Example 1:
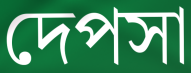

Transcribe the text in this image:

দেপসা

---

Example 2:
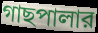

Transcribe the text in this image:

গাছপালার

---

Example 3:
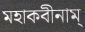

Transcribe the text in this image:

মহাকবীনাম্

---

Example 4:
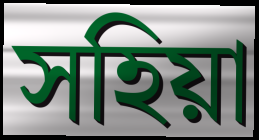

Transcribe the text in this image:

সহিয়া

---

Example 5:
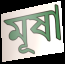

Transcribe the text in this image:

মূষা